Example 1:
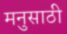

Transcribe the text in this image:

मनुसाठी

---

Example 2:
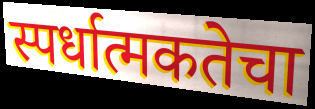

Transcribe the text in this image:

स्पर्धात्मकतेचा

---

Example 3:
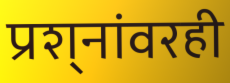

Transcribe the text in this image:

प्रश्नांवरही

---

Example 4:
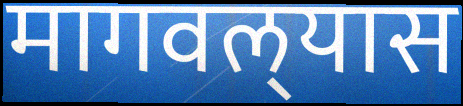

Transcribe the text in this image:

मागवल्यास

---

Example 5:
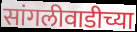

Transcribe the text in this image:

सांगलीवाडीच्या